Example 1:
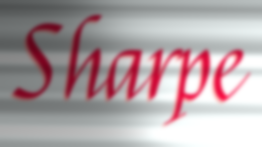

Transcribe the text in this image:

Sharpe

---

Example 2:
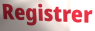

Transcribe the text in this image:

Registrer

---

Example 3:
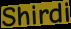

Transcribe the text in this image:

Shirdi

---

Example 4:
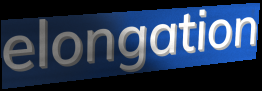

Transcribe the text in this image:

elongation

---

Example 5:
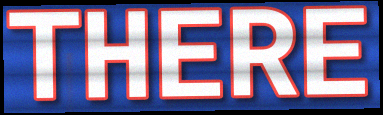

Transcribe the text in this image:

THERE